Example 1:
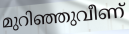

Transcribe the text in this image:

മുറിഞ്ഞുവീണ്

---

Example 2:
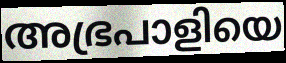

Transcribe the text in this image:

അഭ്രപാളിയെ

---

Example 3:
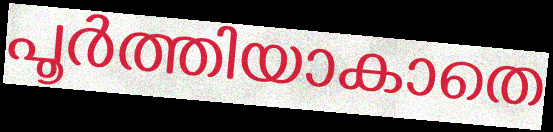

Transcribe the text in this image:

പൂർത്തിയാകാതെ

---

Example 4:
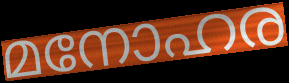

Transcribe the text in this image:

മനോഹര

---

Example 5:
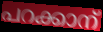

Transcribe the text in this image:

പറക്കാന്